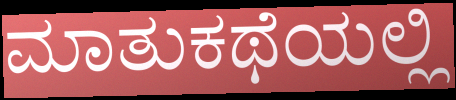
ಮಾತುಕಥೆಯಲ್ಲಿ